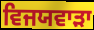
ਵਿਜਯਵਾੜਾ